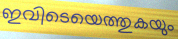
ഇവിടെയെത്തുകയും